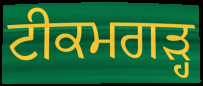
ਟੀਕਮਗੜ੍ਹ